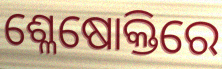
ଶ୍ଳେଷୋକ୍ତିରେ